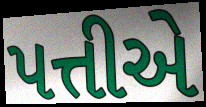
પત્તીએ